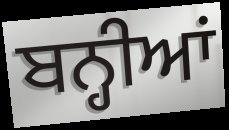
ਬਨ੍ਹੀਆਂ